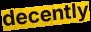
decently